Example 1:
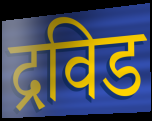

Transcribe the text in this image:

द्रविड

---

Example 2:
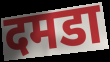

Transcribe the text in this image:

दमडा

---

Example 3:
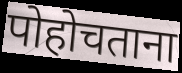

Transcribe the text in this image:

पोहोचताना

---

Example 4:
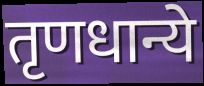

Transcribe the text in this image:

तृणधान्ये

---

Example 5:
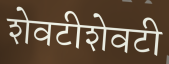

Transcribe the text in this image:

शेवटीशेवटी